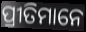
ପ୍ରୀତିମାନେ